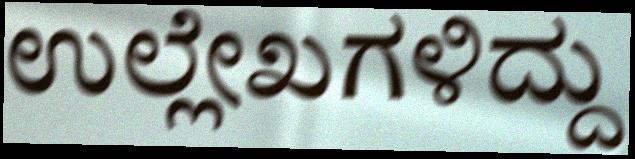
ಉಲ್ಲೇಖಗಳಿದ್ದು